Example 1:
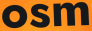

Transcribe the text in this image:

osm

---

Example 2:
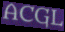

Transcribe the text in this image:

ACGL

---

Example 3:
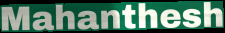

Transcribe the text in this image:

Mahanthesh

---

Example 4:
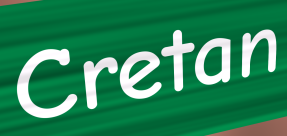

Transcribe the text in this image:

Cretan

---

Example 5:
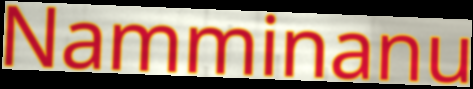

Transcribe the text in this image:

Namminanu